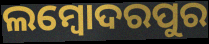
ଲମ୍ବୋଦରପୁର